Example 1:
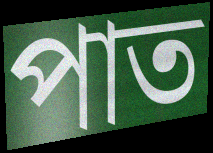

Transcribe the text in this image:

পাত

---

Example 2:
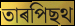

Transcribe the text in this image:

তাৰপিছথ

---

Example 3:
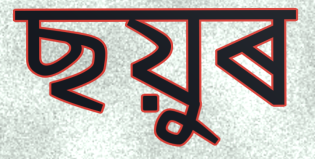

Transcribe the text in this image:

ছয়ুৰ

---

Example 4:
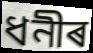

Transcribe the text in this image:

ধনীৰ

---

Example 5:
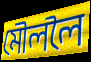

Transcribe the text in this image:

মৌললৈ